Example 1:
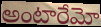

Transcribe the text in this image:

అంటారేమో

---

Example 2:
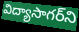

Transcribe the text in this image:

విద్యాసాగర్‌ని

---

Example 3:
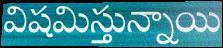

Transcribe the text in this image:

విషమిస్తున్నాయి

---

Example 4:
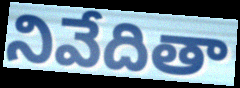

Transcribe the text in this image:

నివేదితా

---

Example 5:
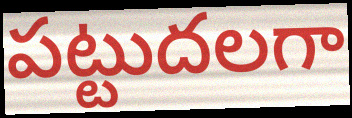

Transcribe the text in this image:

పట్టుదలగా